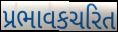
પ્રભાવકચરિત